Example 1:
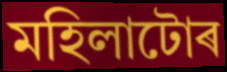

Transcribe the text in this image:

মহিলাটোৰ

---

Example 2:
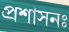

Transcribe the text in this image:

প্ৰশাসনঃ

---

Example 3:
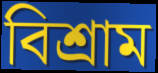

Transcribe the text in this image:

বিশ্ৰাম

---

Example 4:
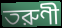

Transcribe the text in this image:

তৰুণী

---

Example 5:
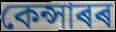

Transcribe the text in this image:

কেন্সাৰৰ